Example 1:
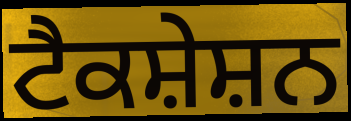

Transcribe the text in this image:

ਟੈਕਸ਼ੇਸ਼ਨ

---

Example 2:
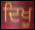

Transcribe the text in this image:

ਦਿਖੂ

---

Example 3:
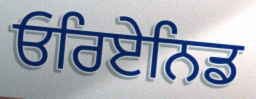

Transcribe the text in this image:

ਓਰਿਏਨਿਡ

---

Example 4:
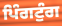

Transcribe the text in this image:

ਪਿੰਗਟੁੰਗ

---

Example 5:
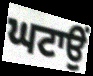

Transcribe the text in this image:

ਘਟਾਉਂ